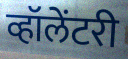
व्हॉलेंटरी